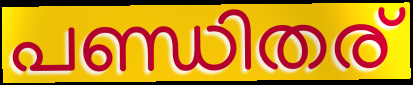
പണ്ഡിതര്